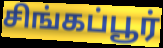
சிங்கப்பூர்